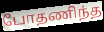
போதணிந்த